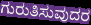
ಗುರುತಿಸುವುದರ